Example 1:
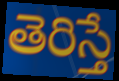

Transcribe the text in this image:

తెరిస్తే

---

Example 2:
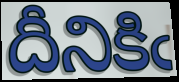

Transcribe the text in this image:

దీనికిఁ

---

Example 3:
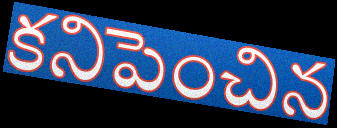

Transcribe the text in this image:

కనిపెంచిన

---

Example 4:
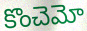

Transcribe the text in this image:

కొంచెమో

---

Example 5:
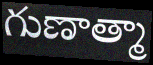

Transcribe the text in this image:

గుణాత్మా